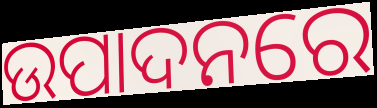
ଉପାଦନରେ